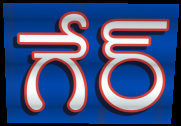
గేర్